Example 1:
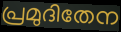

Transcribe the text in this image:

പ്രമുദിതേന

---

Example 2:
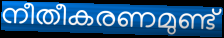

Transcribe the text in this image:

നീതീകരണമുണ്ട്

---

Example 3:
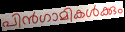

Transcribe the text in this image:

പിൻഗാമികൾക്കും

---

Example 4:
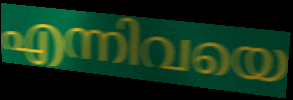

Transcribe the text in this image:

എന്നിവയെ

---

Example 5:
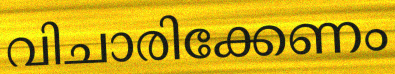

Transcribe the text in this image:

വിചാരിക്കേണം